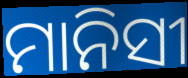
ମାନିସୀ